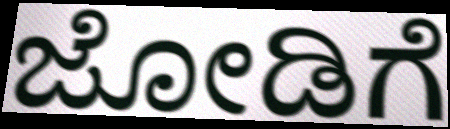
ಜೋಡಿಗೆ